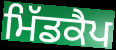
ਮਿੱਡਕੈਪ